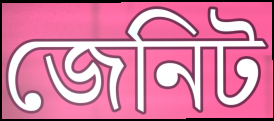
জেনিট